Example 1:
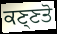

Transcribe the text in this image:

ਕਣ੍ਣਤੋ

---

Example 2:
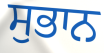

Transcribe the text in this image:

ਸੁਭਾਨ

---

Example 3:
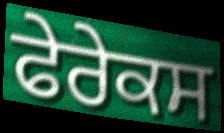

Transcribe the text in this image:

ਫੇਰੇਕਸ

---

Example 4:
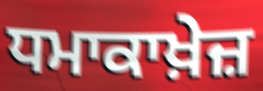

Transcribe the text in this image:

ਧਮਾਕਾਖ਼ੇਜ਼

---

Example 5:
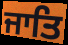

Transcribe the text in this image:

ਜਾਤਿ